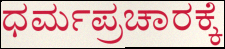
ಧರ್ಮಪ್ರಚಾರಕ್ಕೆ